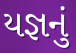
યજ્ઞનું